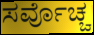
ಸರ್ವೊಚ್ಚ